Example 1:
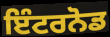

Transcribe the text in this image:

ਇੰਟਰਨੋਡ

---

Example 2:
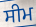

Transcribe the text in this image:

ਸੀਮ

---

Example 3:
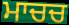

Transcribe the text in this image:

ਮਾਚਚ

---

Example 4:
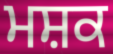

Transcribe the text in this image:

ਮਸ਼ਕ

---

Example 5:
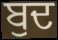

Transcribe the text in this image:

ਬੁਦ